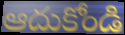
ఆదుకోండి